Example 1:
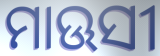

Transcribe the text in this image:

ମାଊସୀ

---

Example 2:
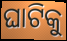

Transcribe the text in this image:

ଘାଟିକୁ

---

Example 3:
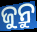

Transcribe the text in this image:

ଜୁନ୍ରୁ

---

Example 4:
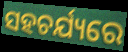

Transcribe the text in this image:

ସହଚର୍ଯ୍ୟରେ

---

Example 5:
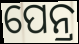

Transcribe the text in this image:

ପେନ୍ର